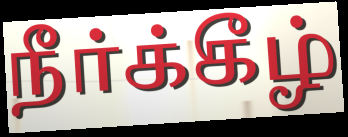
நீர்க்கீழ்